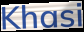
Khasi